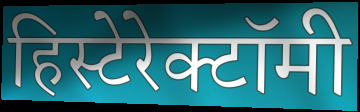
हिस्टेरेक्टॉमी